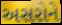
અસરોને